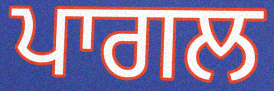
ਪਾਗਲ